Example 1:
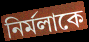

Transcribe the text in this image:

নির্মলাকে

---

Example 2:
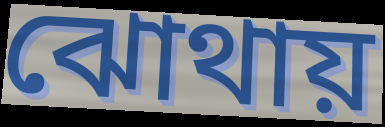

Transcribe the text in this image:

ঝোথায়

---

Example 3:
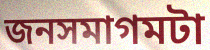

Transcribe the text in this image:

জনসমাগমটা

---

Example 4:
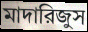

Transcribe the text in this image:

মাদারিজুস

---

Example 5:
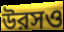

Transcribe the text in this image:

উরসও